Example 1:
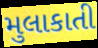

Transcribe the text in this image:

મુલાકાતી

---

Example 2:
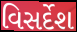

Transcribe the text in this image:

વિસર્દેશ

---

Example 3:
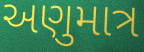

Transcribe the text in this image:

અણુમાત્ર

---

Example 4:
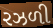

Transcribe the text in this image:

રઝળી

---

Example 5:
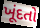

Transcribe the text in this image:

ખૂંદતો